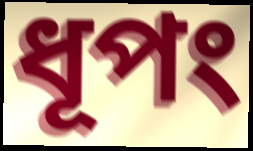
ধূপং